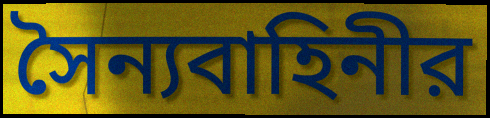
সৈন্যবাহিনীর